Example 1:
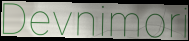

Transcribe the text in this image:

Devnimori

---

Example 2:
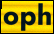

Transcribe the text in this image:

oph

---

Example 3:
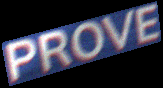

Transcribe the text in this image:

PROVE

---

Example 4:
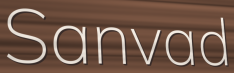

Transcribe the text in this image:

Sanvad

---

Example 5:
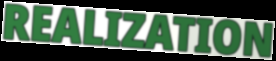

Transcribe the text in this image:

REALIZATION